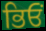
ਭਿਓਂ